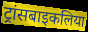
ट्रांसबाइकलिया